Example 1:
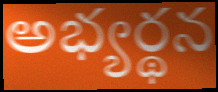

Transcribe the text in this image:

అభ్యర్థన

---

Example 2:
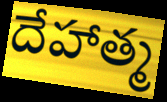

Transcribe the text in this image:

దేహాత్మ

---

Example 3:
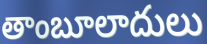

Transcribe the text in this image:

తాంబూలాదులు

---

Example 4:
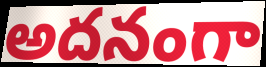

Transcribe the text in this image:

అదనంగా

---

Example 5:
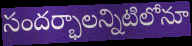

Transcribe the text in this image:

సందర్భాలన్నిటిలోనూ